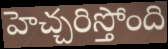
హెచ్చరిస్తోంది